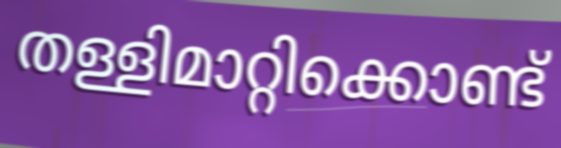
തള്ളിമാറ്റിക്കൊണ്ട്